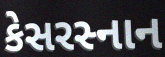
કેસરસ્નાન